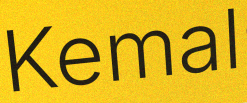
Kemal